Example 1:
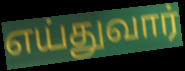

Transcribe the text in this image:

எய்துவார்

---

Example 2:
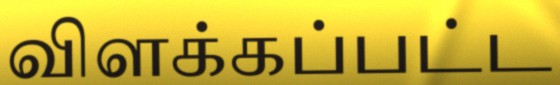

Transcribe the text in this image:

விளக்கப்பட்ட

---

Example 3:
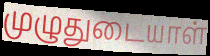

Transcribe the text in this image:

முழுதுடையாள்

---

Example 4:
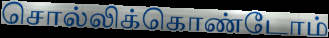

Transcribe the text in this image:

சொல்லிக்கொண்டோம்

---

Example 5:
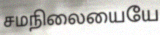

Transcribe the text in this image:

சமநிலையையே